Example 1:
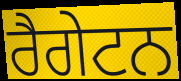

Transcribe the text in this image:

ਰੈਗੇਟਨ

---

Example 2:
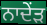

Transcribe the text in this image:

ਨਾਦੇਂੜ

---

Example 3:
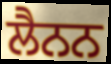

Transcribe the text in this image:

ਲੈਨਨ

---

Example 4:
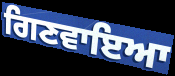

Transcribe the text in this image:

ਗਿਣਵਾਇਆ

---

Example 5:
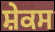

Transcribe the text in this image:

ਸ਼ੇਕਸ